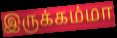
இருக்கம்மா